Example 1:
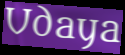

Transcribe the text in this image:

Udaya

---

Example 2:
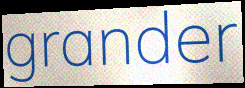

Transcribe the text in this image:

grander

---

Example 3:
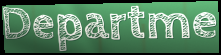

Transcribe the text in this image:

Departme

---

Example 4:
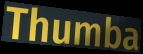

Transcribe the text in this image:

Thumba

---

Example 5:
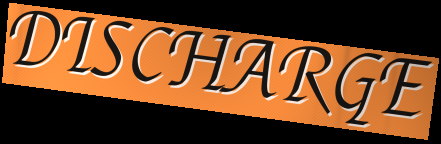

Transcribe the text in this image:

DISCHARGE